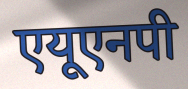
एयूएनपी